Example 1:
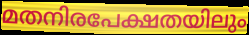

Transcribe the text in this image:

മതനിരപേക്ഷതയിലും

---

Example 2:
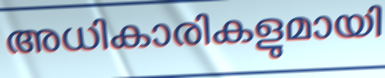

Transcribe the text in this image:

അധികാരികളുമായി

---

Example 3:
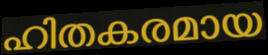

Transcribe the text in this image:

ഹിതകരമായ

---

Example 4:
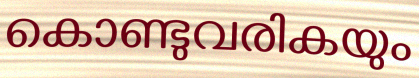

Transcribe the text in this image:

കൊണ്ടുവരികയും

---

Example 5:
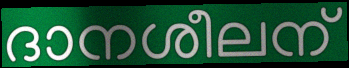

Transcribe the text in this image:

ദാനശീലന്